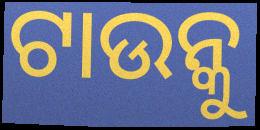
ଟାଉନ୍କୁ